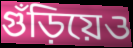
গুঁড়িয়েও